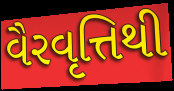
વૈરવૃત્તિથી